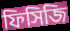
ফিসিজি